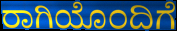
ರಾಗಿಯೊಂದಿಗೆ